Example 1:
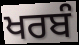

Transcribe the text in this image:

ਖਰਬੰ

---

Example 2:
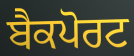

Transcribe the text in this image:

ਬੈਕਪੋਰਟ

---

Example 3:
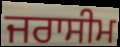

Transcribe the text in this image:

ਜਰਾਸੀਮ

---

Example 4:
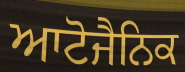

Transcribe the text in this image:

ਆਟੋਜੈਨਿਕ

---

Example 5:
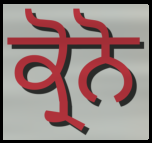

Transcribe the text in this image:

ਕ੍ਰੋਨੋ